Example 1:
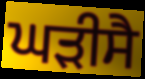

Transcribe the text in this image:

ਘੜੀਸੈ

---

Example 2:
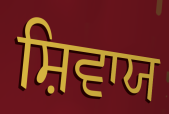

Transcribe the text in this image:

ਸ਼ਿਵਾਯ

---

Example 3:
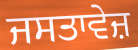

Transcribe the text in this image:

ਜਸਤਾਵੇਜ਼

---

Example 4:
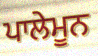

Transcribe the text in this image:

ਪਾਲੇਮੂਨ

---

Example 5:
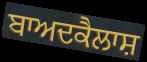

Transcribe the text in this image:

ਬਾਅਦਕੈਲਾਸ਼